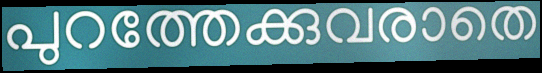
പുറത്തേക്കുവരാതെ